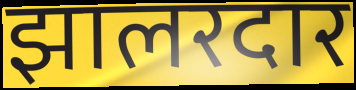
झालरदार